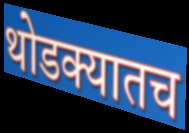
थोडक्यातच